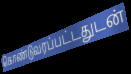
கொண்டுவரப்பட்டதுடன்